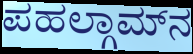
ಪಹಲ್ಗಾಮ್‌ನ